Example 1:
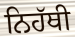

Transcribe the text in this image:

ਨਿਹੱਥੀ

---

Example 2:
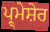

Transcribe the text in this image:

ਪ੍ਰ੍ਮੇਸ਼ੇਰ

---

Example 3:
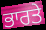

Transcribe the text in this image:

ਭਾਰਤੇ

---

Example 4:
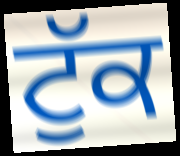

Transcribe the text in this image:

ਟੁੱਕ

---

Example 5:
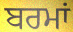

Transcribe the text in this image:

ਬਰਮਾਂ